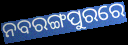
ନବରଙ୍ଗପୁରରେ